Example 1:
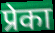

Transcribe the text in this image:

प्रेका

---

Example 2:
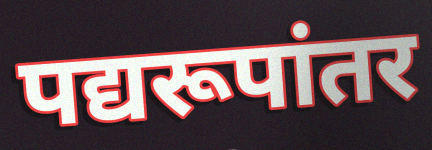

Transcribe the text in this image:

पद्यरूपांतर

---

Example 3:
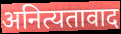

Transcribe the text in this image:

अनित्यतावाद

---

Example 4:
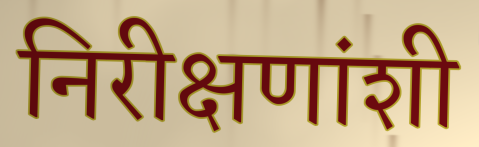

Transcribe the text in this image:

निरीक्षणांशी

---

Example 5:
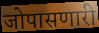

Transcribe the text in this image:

जोपासणारी